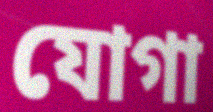
যোগা